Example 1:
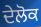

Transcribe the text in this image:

ਦੇਲੋਕ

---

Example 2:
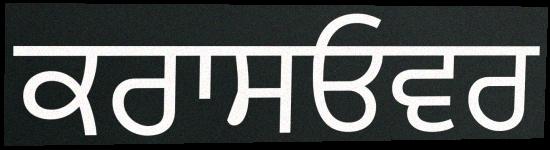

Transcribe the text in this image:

ਕਰਾਸਓਵਰ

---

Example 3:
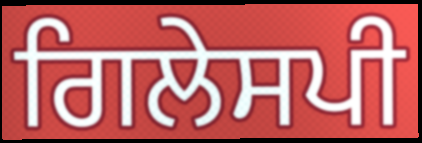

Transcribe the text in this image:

ਗਿਲੇਸਪੀ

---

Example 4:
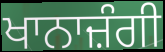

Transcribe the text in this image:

ਖਾਨਾਜ਼ੰਗੀ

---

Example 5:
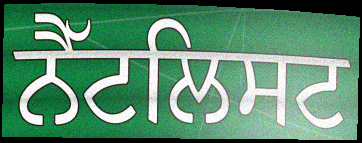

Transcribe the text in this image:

ਨੈੱਟਲਿਸਟ